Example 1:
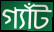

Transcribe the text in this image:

গ্যাঁট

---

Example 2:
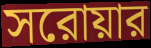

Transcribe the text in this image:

সরোয়ার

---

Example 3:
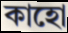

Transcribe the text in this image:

কাহো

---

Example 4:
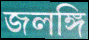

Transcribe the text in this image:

জলঙ্গি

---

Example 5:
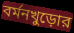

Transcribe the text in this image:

বর্মনখুড়োর